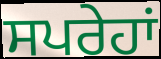
ਸਪਰੇਹਾਂ